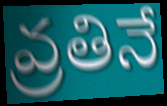
వ్రతినే